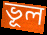
ভূল